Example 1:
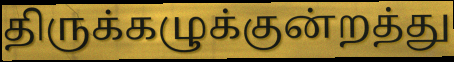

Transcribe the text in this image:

திருக்கழுக்குன்றத்து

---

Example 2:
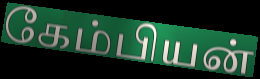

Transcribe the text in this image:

கேம்பியன்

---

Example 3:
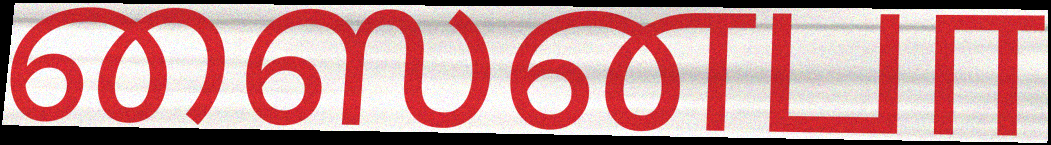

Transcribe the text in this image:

ஸைனபா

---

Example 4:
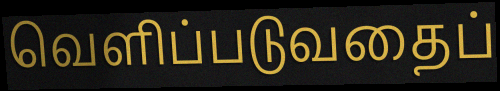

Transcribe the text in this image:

வெளிப்படுவதைப்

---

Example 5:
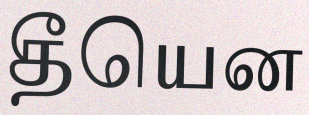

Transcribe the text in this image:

தீயென